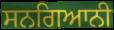
ਸਨਗਿਆਨੀ